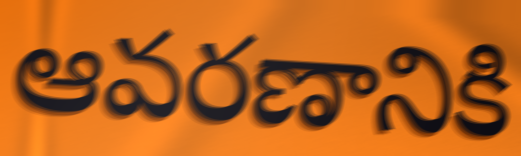
ఆవరణానికి